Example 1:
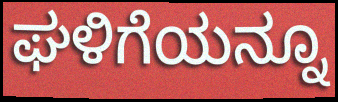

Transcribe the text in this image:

ಘಳಿಗೆಯನ್ನೂ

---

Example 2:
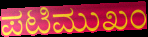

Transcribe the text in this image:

ಪಟಿಮುಖಂ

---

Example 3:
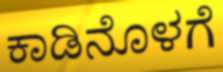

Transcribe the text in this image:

ಕಾಡಿನೊಳಗೆ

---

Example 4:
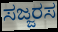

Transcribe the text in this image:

ಸಜ್ಜರಸ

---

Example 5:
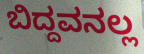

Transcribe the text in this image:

ಬಿದ್ದವನಲ್ಲ